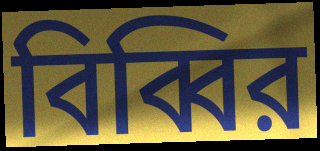
বিব্বির